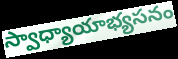
స్వాధ్యాయాభ్యసనం